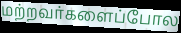
மற்றவர்களைப்போல